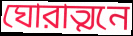
ঘোরাত্মনে